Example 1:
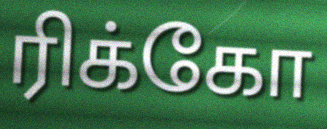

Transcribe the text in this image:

ரிக்கோ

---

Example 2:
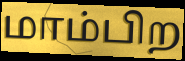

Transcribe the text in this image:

மாம்பிற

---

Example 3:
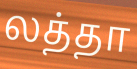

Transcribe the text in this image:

லத்தா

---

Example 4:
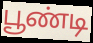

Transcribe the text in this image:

பூண்டி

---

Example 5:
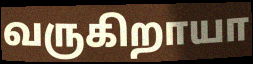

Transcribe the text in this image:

வருகிறாயா